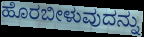
ಹೊರಬೀಳುವುದನ್ನು